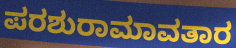
ಪರಶುರಾಮಾವತಾರ